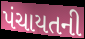
પંચાયતની